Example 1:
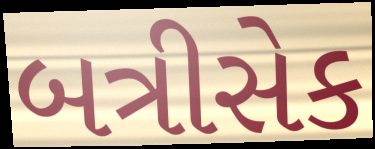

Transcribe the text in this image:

બત્રીસેક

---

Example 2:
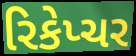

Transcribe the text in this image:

રિકેપ્ચર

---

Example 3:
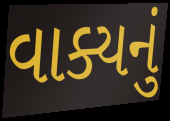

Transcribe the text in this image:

વાક્યનું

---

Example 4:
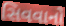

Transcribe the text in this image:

સિવવાનો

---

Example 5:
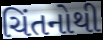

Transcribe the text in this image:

ચિંતનોથી